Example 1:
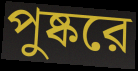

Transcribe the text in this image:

পুষ্করে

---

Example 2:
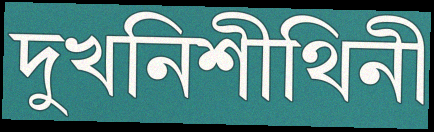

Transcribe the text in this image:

দুখনিশীথিনী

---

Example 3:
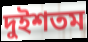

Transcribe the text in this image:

দুইশতম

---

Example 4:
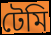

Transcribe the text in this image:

টেমি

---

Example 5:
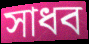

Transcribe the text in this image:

সাধব